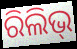
ରିଲିଭ୍